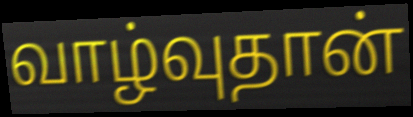
வாழ்வுதான்